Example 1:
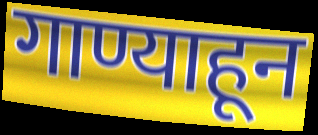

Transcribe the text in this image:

गाण्याहून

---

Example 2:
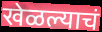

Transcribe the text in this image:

खेळल्याचं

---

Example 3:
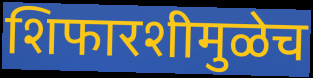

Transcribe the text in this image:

शिफारशीमुळेच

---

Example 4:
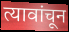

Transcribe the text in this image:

त्यावांचून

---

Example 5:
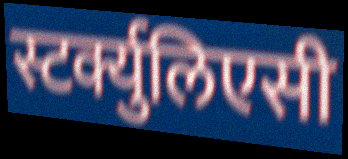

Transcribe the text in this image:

स्टर्क्युलिएसी